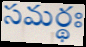
సమర్థః